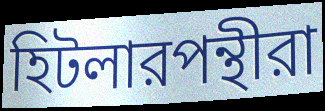
হিটলারপন্থীরা